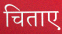
चिताए